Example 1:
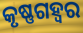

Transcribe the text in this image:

କୃଷ୍ଣଗହ୍ୱର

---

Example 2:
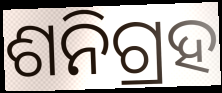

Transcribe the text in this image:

ଶନିଗ୍ରହ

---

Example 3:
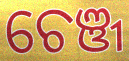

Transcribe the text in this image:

ଚେଞ୍ଜ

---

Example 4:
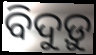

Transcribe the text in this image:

ବିଦୁଡ଼ୁ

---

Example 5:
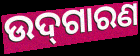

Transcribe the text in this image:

ଉଦ୍‌ଗାରଣ